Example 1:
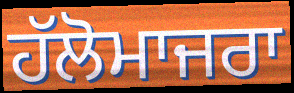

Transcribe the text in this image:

ਹੱਲੋਮਾਜਰਾ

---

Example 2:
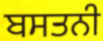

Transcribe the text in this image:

ਬਸਤਨੀ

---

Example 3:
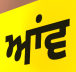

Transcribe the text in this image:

ਆਂਵ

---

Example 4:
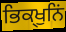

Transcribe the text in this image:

ਭਿਕ੍ਖੁਨਿਂ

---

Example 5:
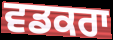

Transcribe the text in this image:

ਵਡਕਰਾ